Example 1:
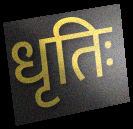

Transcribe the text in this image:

धृतिः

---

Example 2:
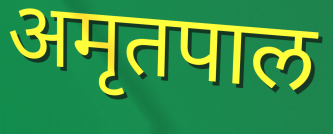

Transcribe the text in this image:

अमृतपाल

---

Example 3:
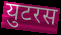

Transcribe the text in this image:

युटरस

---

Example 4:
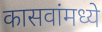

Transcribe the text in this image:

कासवांमध्ये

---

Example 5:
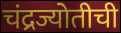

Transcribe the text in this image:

चंद्रज्योतीची